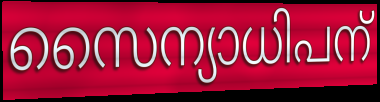
സൈന്യാധിപന്